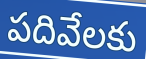
పదివేలకు